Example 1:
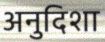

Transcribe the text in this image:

अनुदिशा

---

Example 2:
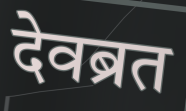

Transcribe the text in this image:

देवब्रत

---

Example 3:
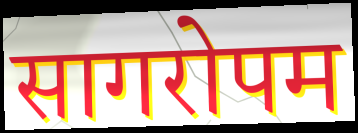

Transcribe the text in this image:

सागरोपम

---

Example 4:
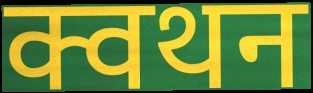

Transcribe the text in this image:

क्वथन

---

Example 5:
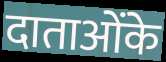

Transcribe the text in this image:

दाताओंके